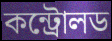
কন্ট্রোলড